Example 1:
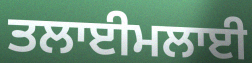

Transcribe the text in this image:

ਤਲਾਈਮਲਾਈ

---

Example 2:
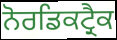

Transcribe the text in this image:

ਨੋਰਡਿਕਟ੍ਰੈਕ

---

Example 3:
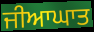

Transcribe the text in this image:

ਜੀਆਘਾਤ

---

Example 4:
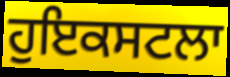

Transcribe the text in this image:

ਹੁਇਕਸਟਲਾ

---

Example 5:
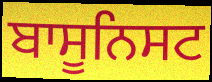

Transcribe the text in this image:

ਬਾਸੂਨਿਸਟ